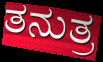
ತನುತ್ರ